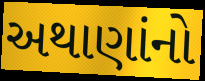
અથાણાંનો